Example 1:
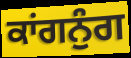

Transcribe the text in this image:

ਕਾਂਗਨੁੰਗ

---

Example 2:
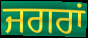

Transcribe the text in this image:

ਜਗਰਾਂ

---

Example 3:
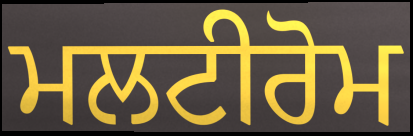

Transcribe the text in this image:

ਮਲਟੀਰੋਮ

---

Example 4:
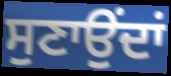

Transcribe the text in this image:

ਸੁਣਾਉਂਦਾਂ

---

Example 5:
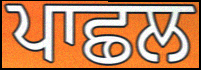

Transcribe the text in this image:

ਪਾਛਲ